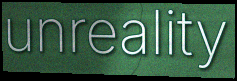
unreality